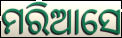
ମରିଆସେ